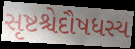
સૃષ્ટશ્ચેદૌષધસ્ય